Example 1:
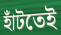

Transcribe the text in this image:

হাঁটতেই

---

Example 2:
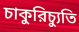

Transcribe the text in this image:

চাকুরিচ্যুতি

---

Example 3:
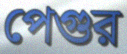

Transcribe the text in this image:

পেগুর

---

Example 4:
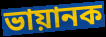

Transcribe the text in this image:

ভায়ানক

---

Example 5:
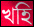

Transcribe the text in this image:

খহি